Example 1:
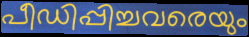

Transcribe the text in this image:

പീഡിപ്പിച്ചവരെയും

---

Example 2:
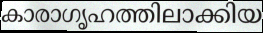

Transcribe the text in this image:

കാരാഗൃഹത്തിലാക്കിയ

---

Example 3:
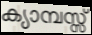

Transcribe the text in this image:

ക്യാമ്പസ്സ്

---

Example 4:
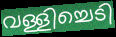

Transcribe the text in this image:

വള്ളിച്ചെടി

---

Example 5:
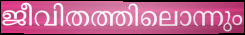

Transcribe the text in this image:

ജീവിതത്തിലൊന്നും